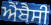
ਐਂਬੈਸੀ